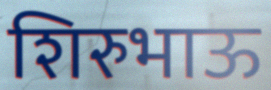
शिरुभाऊ